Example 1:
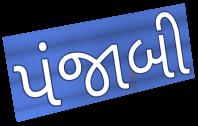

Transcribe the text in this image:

પંજાબી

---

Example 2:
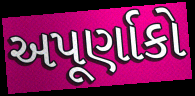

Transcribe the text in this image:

અપૂર્ણાકો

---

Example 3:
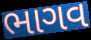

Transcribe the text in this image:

ભાગવ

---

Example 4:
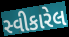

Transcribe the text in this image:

સ્વીકારેલ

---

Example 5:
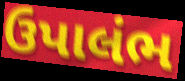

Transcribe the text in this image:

ઉપાલંભ